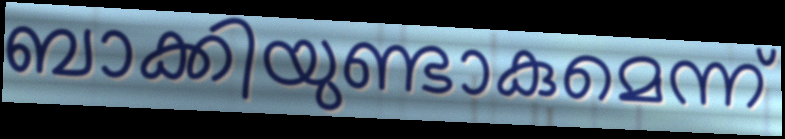
ബാക്കിയുണ്ടാകുമെന്ന്